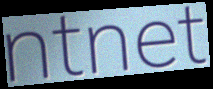
ntnet